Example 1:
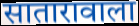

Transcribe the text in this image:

सातारावाला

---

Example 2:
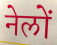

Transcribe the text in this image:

नेलों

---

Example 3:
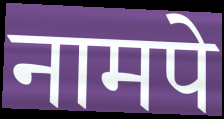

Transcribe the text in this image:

नामपे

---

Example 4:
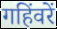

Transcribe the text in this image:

गहिंवरें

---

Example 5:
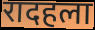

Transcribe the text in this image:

रादहला